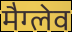
मैग्लेव